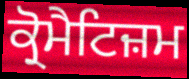
ਕ੍ਰੋਮੈਟਿਜ਼ਮ